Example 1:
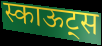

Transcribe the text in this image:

स्काऊट्स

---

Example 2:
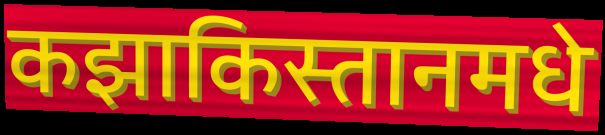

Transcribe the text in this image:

कझाकिस्तानमधे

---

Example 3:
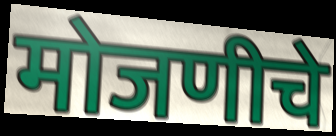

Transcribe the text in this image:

मोजणीचे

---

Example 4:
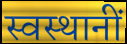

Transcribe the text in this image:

स्वस्थानीं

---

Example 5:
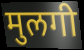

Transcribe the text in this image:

मुलगी